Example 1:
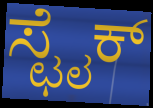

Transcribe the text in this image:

ಸ್ಟೈಕ್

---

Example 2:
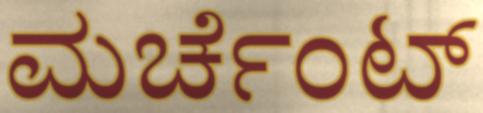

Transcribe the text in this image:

ಮರ್ಚೆಂಟ್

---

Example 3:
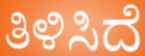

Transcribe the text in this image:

ತಿಳಿಸಿದೆ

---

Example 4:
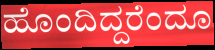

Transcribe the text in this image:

ಹೊಂದಿದ್ದರೆಂದೂ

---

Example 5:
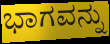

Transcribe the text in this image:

ಭಾಗವನ್ನು